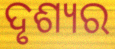
ଦୃଶ୍ୟର